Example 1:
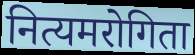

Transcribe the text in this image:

नित्यमरोगिता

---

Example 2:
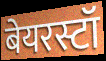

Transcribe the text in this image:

बेयरस्टॉ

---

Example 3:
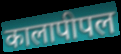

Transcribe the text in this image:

कालापीपल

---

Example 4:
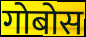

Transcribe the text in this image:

गोबोस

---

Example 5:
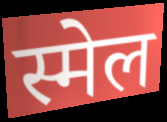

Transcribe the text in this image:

स्‍मेल